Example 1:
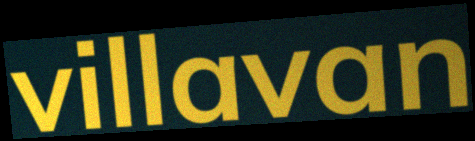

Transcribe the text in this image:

villavan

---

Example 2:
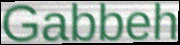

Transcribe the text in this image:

Gabbeh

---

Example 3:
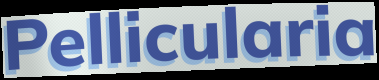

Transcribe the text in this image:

Pellicularia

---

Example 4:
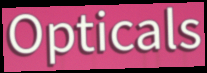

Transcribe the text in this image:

Opticals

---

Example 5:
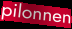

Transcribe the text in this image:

pilonnen